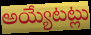
అయ్యేటట్లు